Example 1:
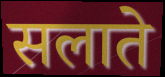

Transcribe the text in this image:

सलाते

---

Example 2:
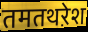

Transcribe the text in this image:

तमतथऱेश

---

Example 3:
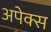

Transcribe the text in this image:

अपेक्स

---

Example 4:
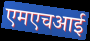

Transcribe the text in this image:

एमएचआई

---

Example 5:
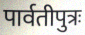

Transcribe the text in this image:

पार्वतीपुत्रः